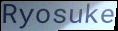
Ryosuke